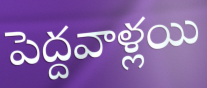
పెద్దవాళ్లయి